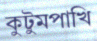
কুটুমপাখি